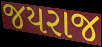
જયરાજ